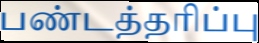
பண்டத்தரிப்பு